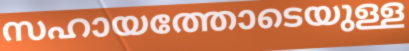
സഹായത്തോടെയുള്ള